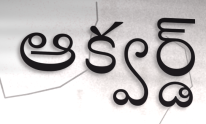
ఆక్వర్డ్